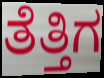
ತೆತ್ತಿಗ